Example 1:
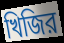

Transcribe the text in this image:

খিজির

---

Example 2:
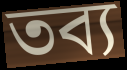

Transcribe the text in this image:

তব্য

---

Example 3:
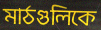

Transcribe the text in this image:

মাঠগুলিকে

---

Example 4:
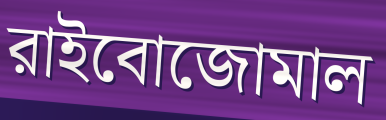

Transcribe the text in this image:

রাইবোজোমাল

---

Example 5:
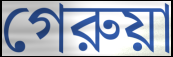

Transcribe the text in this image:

গেরুয়া